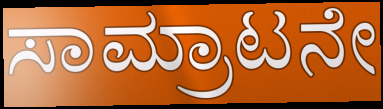
ಸಾಮ್ರಾಟನೇ